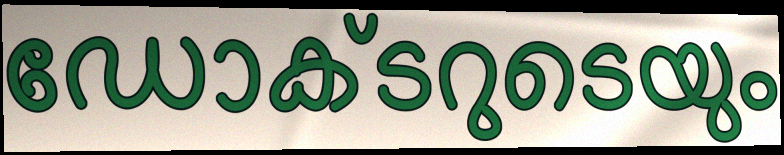
ഡോക്ടറുടെയും